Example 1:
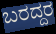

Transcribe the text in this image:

ಬರದ್ದರ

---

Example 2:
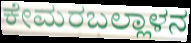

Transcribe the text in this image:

ಕೇಮರಬಲ್ಲಾಳನ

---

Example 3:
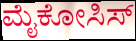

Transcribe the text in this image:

ಮೈಕೋಸಿಸ್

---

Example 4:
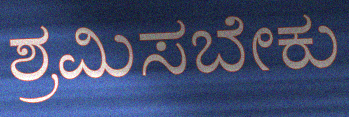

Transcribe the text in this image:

ಶ್ರಮಿಸಬೇಕು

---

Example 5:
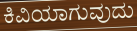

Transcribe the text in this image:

ಕಿವಿಯಾಗುವುದು